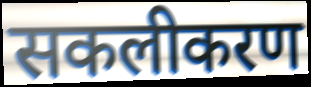
सकलीकरण